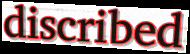
discribed